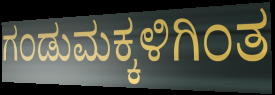
ಗಂಡುಮಕ್ಕಳಿಗಿಂತ